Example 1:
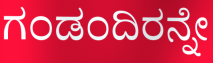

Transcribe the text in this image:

ಗಂಡಂದಿರನ್ನೇ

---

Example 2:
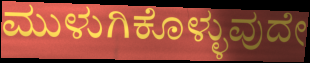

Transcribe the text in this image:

ಮುಳುಗಿಕೊಳ್ಳುವುದೇ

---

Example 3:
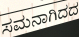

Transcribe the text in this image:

ಸಮನಾಗಿದದ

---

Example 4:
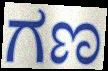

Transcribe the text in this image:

ಗಣ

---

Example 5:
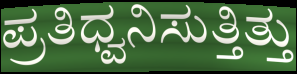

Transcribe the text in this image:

ಪ್ರತಿಧ್ವನಿಸುತ್ತಿತ್ತು